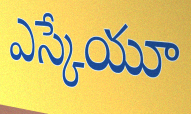
ఎస్కేయూ